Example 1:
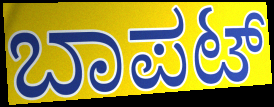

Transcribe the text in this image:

ಬಾಪಟ್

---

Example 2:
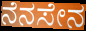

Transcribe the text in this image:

ನೆನಸೇನ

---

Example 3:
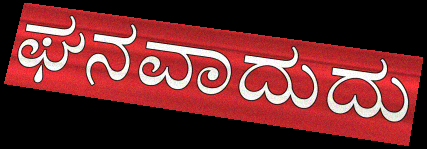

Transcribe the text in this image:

ಘನವಾದುದು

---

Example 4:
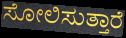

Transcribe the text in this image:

ಸೋಲಿಸುತ್ತಾರೆ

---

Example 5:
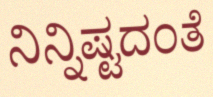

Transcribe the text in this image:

ನಿನ್ನಿಷ್ಟದಂತೆ